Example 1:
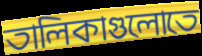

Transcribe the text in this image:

তালিকাগুলোতে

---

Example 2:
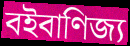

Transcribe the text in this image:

বইবাণিজ্য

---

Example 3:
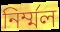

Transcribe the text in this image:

নির্ম্মল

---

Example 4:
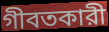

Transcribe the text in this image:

গীবতকারী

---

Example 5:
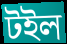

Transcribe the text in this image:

টইল